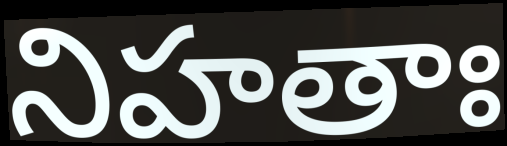
నిహతాః